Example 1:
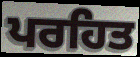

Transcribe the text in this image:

ਪਰਹਿਤ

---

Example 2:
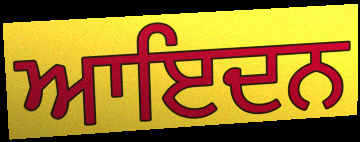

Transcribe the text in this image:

ਆਇਦਨ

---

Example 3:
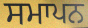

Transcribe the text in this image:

ਸਮਾਪਨ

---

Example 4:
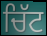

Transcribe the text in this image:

ਚਿੱਟ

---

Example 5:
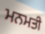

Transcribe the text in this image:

ਮਨਮਤੀ